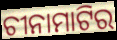
ଚୀନାମାଟିର